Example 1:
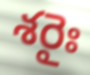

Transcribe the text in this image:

శరైః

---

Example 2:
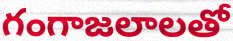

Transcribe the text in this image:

గంగాజలాలతో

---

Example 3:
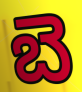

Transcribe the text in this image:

బె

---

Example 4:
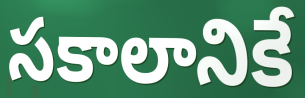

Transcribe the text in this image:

సకాలానికే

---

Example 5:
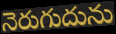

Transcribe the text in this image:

నెరుగుదును